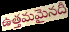
ఉత్తమమైనదీ